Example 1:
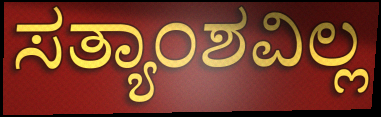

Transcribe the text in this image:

ಸತ್ಯಾಂಶವಿಲ್ಲ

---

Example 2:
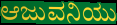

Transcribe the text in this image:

ಆಜುವನಿಯು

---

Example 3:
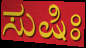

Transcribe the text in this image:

ಸುಷಿಃ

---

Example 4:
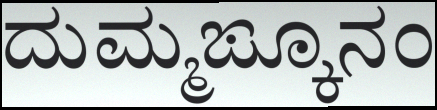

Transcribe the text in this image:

ದುಮ್ಮಙ್ಕೂನಂ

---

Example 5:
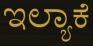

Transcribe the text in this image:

ಇಲ್ಯಾಕೆ